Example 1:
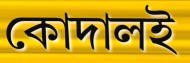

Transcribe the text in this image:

কোদালই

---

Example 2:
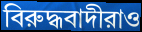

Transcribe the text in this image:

বিরুদ্ধবাদীরাও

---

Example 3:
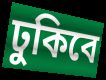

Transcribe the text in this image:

ঢুকিবে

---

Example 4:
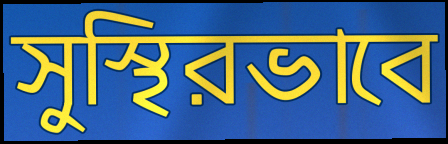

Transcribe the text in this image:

সুস্থিরভাবে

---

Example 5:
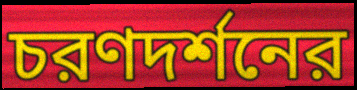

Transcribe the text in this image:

চরণদর্শনের